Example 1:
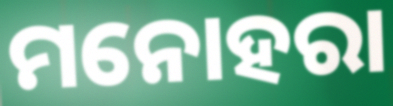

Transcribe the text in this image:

ମନୋହରା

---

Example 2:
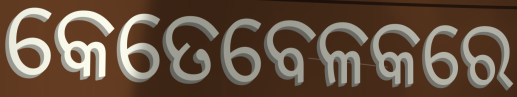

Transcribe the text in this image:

କେତେବେଳକରେ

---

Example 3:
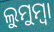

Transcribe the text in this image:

ଲୁମୁମ୍ବା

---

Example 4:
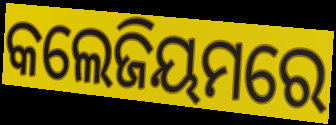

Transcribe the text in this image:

କଲେଜିୟମରେ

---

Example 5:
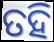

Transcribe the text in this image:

ତହି